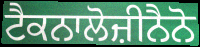
ਟੈਕਨਾਲੋਜ਼ੀਨੈਨੋ